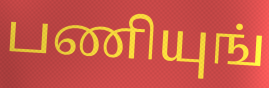
பணியுங்